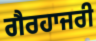
ਗੈਰਹਾਜਰੀ